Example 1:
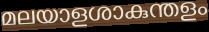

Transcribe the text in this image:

മലയാളശാകുന്തളം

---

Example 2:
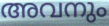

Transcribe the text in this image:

അവനും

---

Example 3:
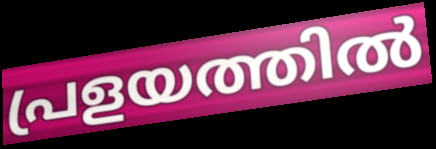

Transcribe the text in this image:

പ്രളയത്തിൽ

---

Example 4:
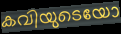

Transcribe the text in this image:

കവിയുടെയോ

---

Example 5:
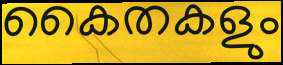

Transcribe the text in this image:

കൈതകളും